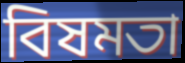
বিষমতা